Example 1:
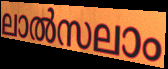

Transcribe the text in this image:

ലാൽസലാം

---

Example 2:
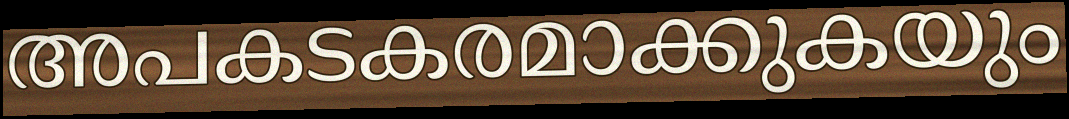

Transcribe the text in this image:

അപകടകരമാക്കുകയും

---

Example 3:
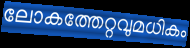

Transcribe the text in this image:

ലോകത്തേറ്റവുമധികം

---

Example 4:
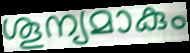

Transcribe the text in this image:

ശൂന്യമാകും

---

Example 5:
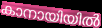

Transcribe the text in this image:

കാനായിയിൽ